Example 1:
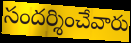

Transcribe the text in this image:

సందర్శించేవారు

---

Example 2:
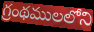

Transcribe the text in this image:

గ్రంథములలోని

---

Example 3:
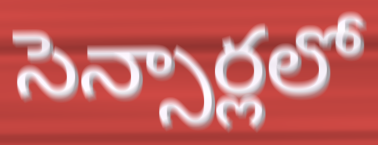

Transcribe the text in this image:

సెన్సార్లలో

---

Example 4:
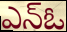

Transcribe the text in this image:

ఎన్ఓ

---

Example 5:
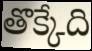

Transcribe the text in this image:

తొక్కేది